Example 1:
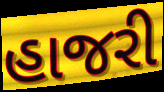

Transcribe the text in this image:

હાજરી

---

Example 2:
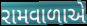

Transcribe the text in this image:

રામવાળાએ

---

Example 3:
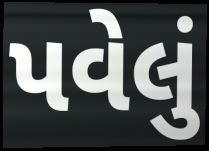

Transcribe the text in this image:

પવેલું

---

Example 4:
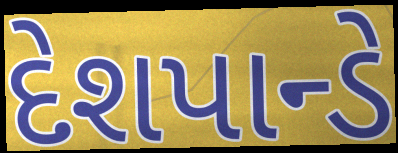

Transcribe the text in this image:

દેશપાન્ડે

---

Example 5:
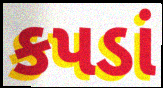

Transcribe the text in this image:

કપડાં